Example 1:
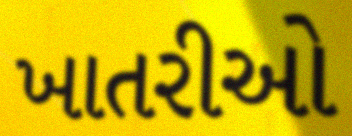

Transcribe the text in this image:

ખાતરીઓ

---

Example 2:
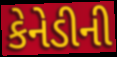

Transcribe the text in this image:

કેનેડીની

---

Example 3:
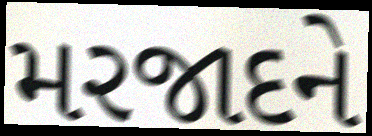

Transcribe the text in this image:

મરજાદને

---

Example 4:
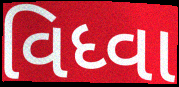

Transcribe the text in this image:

વિધ્વા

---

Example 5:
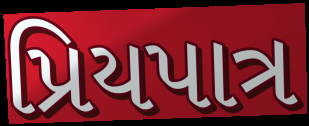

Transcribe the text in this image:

પ્રિયપાત્ર